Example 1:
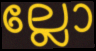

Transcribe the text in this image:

ല്ലോ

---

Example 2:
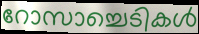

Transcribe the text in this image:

റോസാച്ചെടികൾ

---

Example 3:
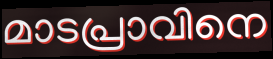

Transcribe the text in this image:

മാടപ്രാവിനെ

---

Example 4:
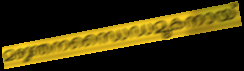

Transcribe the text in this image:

മജ്ഞനന്ധൈഡമൂകനായ്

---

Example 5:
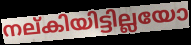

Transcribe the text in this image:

നല്കിയിട്ടില്ലയോ